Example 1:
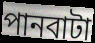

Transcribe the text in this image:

পানবাটা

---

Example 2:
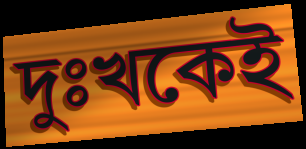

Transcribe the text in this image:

দুঃখকেই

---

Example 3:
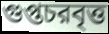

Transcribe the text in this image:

গুপ্তচরবৃত্ত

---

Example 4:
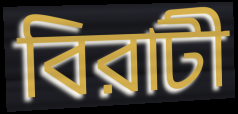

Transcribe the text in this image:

বিরাটী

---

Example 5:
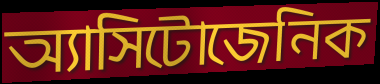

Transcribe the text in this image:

অ্যাসিটোজেনিক